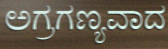
ಅಗ್ರಗಣ್ಯವಾದ